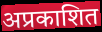
अप्रकाशित